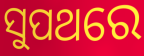
ସୁପଥରେ